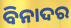
ବିନାଦର